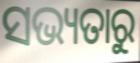
ସଭ୍ୟତାରୁ